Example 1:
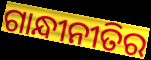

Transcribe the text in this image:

ଗାନ୍ଧୀନୀତିର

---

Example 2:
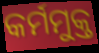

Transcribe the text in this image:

କର୍ମମୁକ୍ତ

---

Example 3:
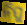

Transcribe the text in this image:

ନିପୁ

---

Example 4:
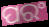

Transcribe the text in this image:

ପରଂ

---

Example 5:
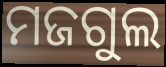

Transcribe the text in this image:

ମଜଗୁଲ